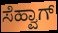
ಸೆಹ್ವಾಗ್